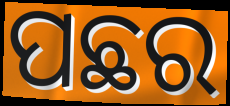
ପଛର